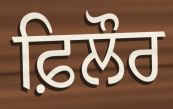
ਫ਼ਿਲੌਰ